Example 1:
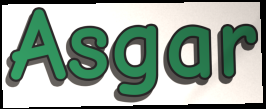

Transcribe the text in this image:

Asgar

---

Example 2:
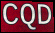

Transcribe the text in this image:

CQD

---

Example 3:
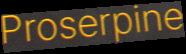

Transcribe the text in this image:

Proserpine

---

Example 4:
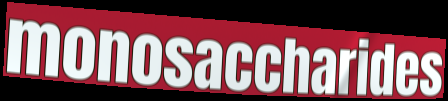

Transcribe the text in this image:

monosaccharides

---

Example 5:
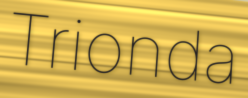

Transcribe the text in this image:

Trionda